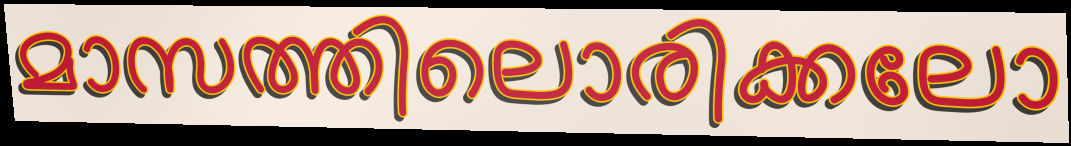
മാസത്തിലൊരിക്കലോ